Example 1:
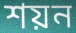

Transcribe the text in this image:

শয়ন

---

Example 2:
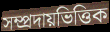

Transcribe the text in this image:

সম্প্ৰদায়ভিত্তিক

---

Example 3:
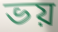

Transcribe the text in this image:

ভয়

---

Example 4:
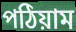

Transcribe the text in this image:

পঠিয়াম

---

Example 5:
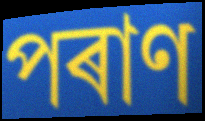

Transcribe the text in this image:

পৰাণ